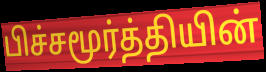
பிச்சமூர்த்தியின்